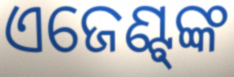
ଏଜେଣ୍ଟ୍‍ଙ୍କ